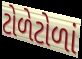
ટોળેટોળાં